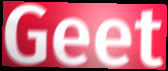
Geet